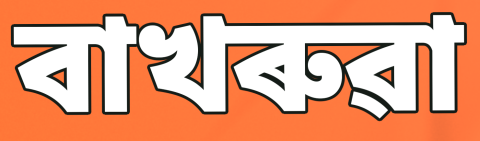
বাখৰুৱা